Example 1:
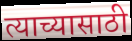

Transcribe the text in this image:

त्याच्यासाठी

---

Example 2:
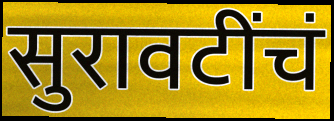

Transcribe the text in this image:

सुरावटींचं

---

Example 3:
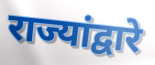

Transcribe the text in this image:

राज्यांद्वारे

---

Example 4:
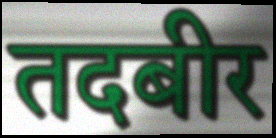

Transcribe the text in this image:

तदबीर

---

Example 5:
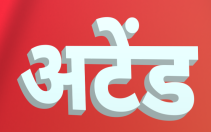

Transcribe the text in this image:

अटेंड